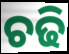
ଚଢି